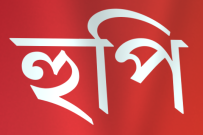
হুপি